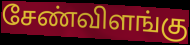
சேண்விளங்கு